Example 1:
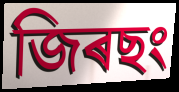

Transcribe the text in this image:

জিৰছং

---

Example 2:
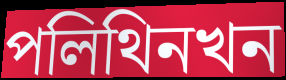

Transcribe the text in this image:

পলিথিনখন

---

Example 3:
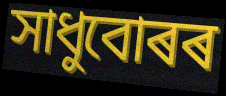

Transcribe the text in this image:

সাধুবোৰৰ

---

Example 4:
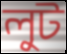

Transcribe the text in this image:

লুট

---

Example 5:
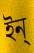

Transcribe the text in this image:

ইন্